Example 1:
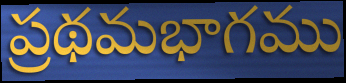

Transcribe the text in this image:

ప్రథమభాగము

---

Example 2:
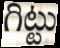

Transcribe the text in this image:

గిట్టు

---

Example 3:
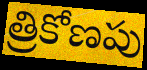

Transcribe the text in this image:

త్రికోణపు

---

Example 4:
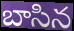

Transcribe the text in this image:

బాసిన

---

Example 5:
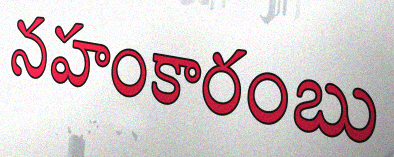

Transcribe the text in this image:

నహంకారంబు